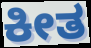
ಕೀತ